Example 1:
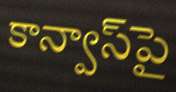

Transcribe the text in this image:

కాన్వాస్‌పై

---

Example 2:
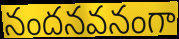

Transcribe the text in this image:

నందనవనంగా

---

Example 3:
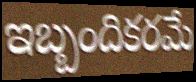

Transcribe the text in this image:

ఇబ్బందికరమే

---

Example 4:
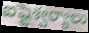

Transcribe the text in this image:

ఐష్టెశ్వర్యాలు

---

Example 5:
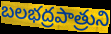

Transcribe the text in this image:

బలభద్రపాత్రుని